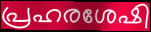
പ്രഹരശേഷി